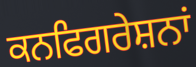
ਕਨਫਿਗਰੇਸ਼ਨਾਂ